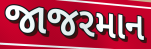
જાજરમાન